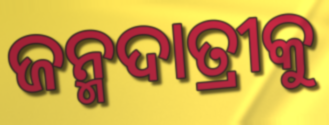
ଜନ୍ମଦାତ୍ରୀକୁ